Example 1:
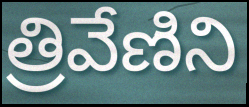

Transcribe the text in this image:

త్రివేణిని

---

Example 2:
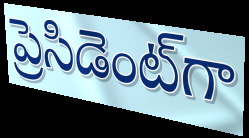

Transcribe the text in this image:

ప్రెసిడెంట్‌గా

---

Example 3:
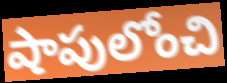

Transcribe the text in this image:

షాపులోంచి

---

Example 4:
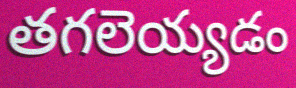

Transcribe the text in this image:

తగలెయ్యడం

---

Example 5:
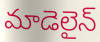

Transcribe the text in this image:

మాడెలైన్